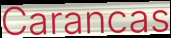
Carancas